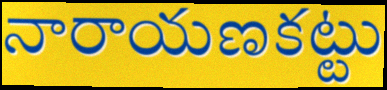
నారాయణకట్టు